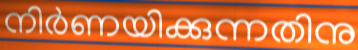
നിർണയിക്കുന്നതിനു